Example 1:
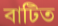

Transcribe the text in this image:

বাটিত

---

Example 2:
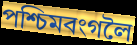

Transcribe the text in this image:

পশ্চিমবংগলৈ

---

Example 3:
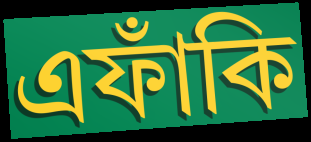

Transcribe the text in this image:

এফাঁকি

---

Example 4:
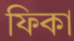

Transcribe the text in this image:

ফিকা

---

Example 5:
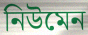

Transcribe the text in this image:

নিউমেন